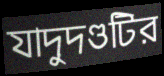
যাদুদণ্ডটির